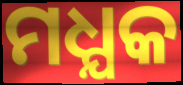
ମଧ୍ଯକ